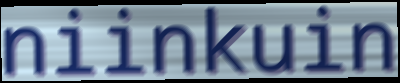
niinkuin